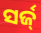
ସର୍ଜ୍